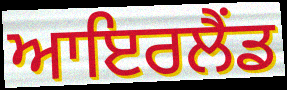
ਆਇਰਲੈਂਡ